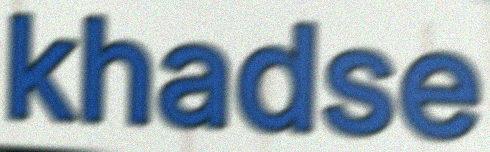
khadse